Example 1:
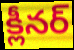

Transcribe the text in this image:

క్లీనర్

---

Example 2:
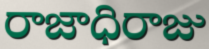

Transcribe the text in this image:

రాజాధిరాజు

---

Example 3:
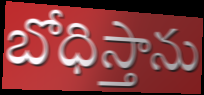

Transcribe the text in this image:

బోధిస్తాను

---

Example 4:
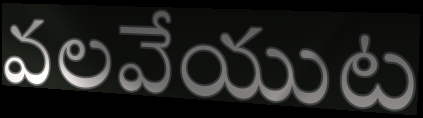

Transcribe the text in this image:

వలవేయుట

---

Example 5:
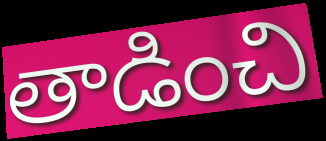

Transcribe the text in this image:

తాడించి